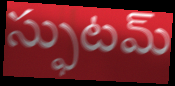
స్ఫుటమ్